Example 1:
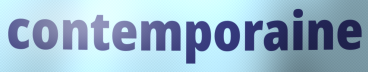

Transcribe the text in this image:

contemporaine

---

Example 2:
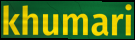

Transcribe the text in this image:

khumari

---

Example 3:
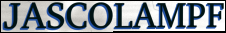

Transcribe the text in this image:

JASCOLAMPF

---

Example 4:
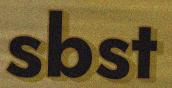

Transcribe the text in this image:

sbst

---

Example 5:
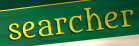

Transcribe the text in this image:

searcher